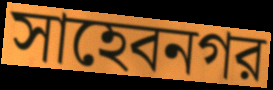
সাহেবনগর